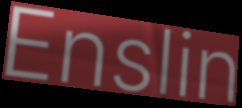
Enslin